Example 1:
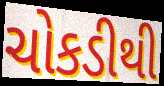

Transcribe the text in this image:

ચોકડીથી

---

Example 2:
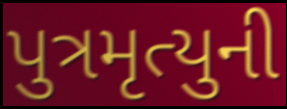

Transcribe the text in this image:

પુત્રમૃત્યુની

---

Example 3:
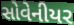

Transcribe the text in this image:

સોવેનીયર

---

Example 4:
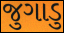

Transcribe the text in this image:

જુગાડુ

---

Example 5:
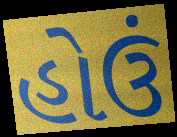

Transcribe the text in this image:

હોઉં